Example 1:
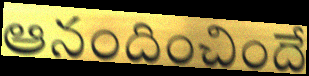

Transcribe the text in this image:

ఆనందించిందే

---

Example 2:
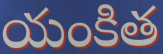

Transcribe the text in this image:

యంకిత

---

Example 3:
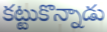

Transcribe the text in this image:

కట్టుకొన్నాడు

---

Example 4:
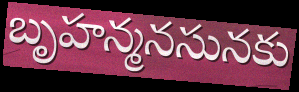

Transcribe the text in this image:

బృహన్మనసునకు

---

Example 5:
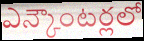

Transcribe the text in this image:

ఎన్కౌంటర్లలో